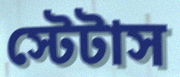
স্টেটাস